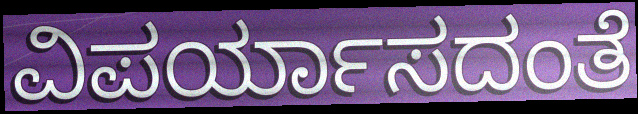
ವಿಪರ್ಯಾಸದಂತೆ